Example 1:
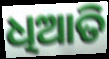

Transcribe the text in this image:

ଧିଆତି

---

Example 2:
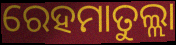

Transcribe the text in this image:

ରେହମାତୁଲ୍ଲା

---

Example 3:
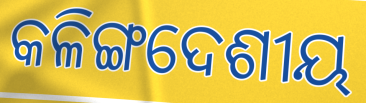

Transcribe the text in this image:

କଳିଙ୍ଗଦେଶୀୟ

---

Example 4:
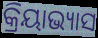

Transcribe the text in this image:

କ୍ରିୟାଭ୍ୟାସ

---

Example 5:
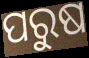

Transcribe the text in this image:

ପରୁଷ